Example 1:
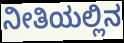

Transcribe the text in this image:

ನೀತಿಯಲ್ಲಿನ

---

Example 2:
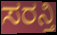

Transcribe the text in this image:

ಸರನ್ತಿ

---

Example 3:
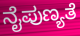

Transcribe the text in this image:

ನೈಪುಣ್ಯತೆ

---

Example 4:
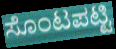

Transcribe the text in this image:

ಸೊಂಟಪಟ್ಟಿ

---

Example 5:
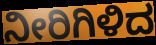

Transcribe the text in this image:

ನೀರಿಗಿಳಿದ